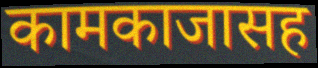
कामकाजासह